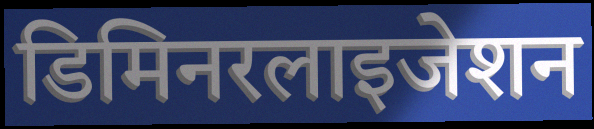
डिमिनरलाइजेशन